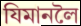
যিমানলৈ